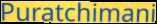
Puratchimani